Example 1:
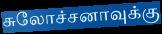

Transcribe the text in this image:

சுலோச்சனாவுக்கு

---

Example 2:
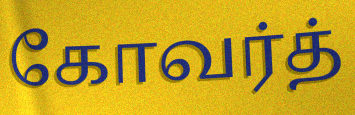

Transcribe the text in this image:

கோவர்த்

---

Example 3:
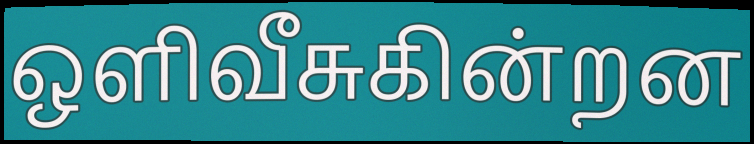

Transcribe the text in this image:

ஒளிவீசுகின்றன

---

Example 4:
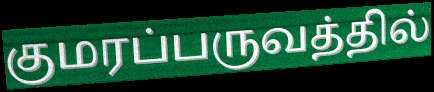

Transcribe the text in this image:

குமரப்பருவத்தில்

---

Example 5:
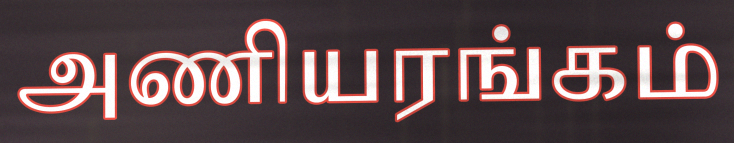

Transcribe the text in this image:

அணியரங்கம்